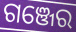
ଗଞ୍ଜେର